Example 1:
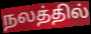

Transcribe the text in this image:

நலத்தில்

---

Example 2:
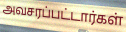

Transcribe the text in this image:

அவசரப்பட்டார்கள்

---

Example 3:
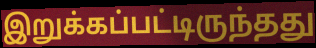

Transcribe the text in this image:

இறுக்கப்பட்டிருந்தது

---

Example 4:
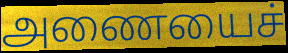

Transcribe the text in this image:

அணையைச்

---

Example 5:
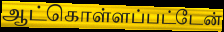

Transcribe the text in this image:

ஆட்கொள்ளப்பட்டேன்